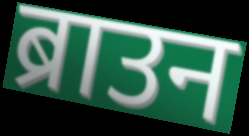
ब्राउन